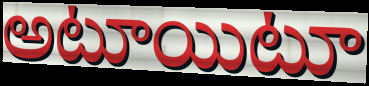
అటూయిటూ